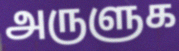
அருளுக